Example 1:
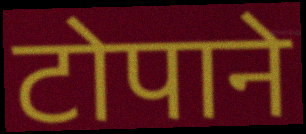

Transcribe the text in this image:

टोपाने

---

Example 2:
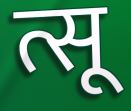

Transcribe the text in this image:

त्सू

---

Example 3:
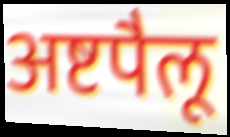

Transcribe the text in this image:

अष्टपैलू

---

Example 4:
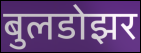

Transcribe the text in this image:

बुलडोझर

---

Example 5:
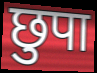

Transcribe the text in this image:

छुपा